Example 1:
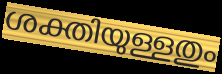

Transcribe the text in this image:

ശക്തിയുള്ളതും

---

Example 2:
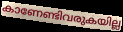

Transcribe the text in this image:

കാണേണ്ടിവരുകയില്ല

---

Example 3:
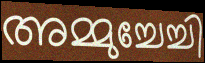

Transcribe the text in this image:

അമ്മുച്ചേച്ചി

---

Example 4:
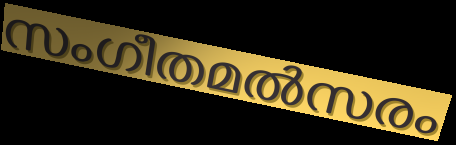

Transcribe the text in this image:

സംഗീതമൽസരം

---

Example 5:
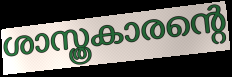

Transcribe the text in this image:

ശാസ്ത്രകാരന്റെ